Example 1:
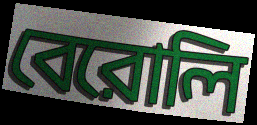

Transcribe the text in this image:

বেরোলি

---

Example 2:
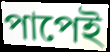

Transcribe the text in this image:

পাপেই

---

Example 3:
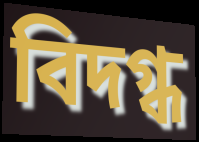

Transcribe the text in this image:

বিদগ্ধ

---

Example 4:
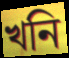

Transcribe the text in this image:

খনি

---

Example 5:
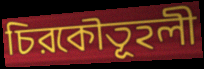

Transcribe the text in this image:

চিরকৌতূহলী